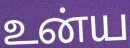
உன்ய